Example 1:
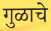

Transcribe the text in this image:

गुळाचे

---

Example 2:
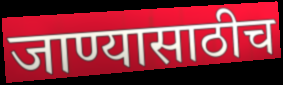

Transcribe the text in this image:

जाण्यासाठीच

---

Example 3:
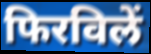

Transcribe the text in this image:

फिरविलें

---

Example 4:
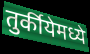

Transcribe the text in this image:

तुर्कीयेमध्ये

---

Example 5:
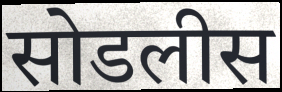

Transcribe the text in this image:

सोडलीस